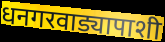
धनगरवाड्यापाशी